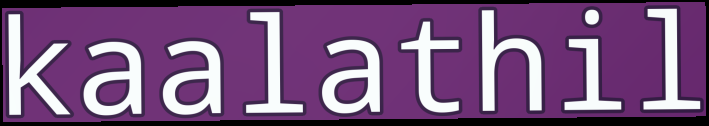
kaalathil